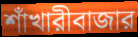
শাঁখারীবাজার